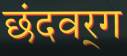
छंदवर्ग